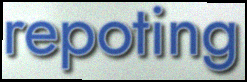
repoting